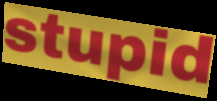
stupid